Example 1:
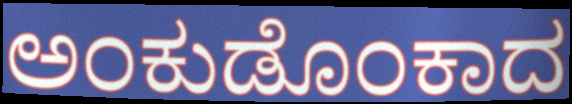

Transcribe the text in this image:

ಅಂಕುಡೊಂಕಾದ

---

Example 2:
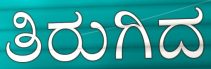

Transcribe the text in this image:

ತಿರುಗಿದ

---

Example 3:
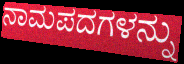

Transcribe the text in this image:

ನಾಮಪದಗಳನ್ನು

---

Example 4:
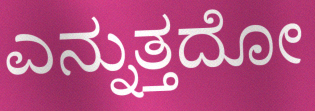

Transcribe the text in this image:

ಎನ್ನುತ್ತದೋ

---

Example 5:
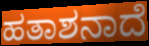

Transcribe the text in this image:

ಹತಾಶನಾದೆ